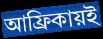
আফ্রিকায়ই